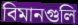
বিমানগুলি